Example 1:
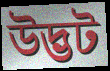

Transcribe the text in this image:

উদ্ভট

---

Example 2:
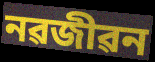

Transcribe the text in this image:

নৱজীৱন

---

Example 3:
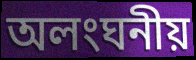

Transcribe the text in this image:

অলংঘনীয়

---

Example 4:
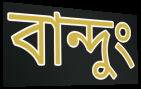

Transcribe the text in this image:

বান্দুং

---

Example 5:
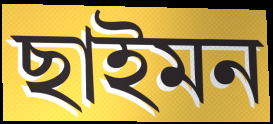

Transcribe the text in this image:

ছাইমন